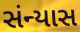
સંન્યાસ